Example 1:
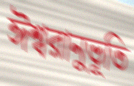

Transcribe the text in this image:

ঈশ্বরানুভূতি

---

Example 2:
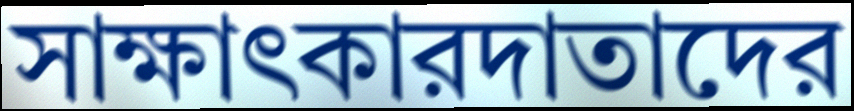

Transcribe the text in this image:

সাক্ষাৎকারদাতাদের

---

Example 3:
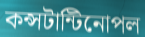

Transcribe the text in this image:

কন্সটান্টিনোপল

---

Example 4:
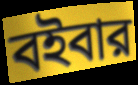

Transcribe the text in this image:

বইবার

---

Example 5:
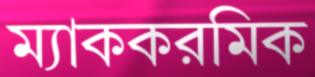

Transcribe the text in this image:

ম্যাককরমিক